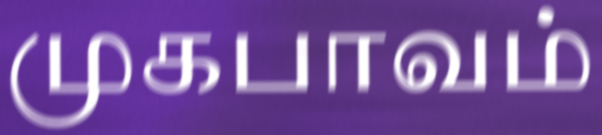
முகபாவம்